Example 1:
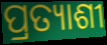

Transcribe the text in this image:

ପ୍ରତ୍ୟାଶୀ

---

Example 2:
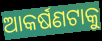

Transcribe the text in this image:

ଆକର୍ଷଣଟାକୁ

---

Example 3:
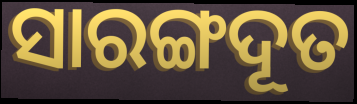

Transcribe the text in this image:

ସାରଙ୍ଗଦୂତ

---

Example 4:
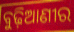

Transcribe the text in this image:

ବୁଢ଼ିଆଣୀର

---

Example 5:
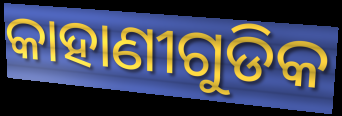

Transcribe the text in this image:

କାହାଣୀଗୁଡିକ